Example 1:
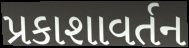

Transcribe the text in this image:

પ્રકાશાવર્તન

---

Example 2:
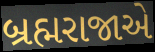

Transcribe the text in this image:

બ્રહ્મરાજાએ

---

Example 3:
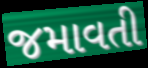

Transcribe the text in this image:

જમાવતી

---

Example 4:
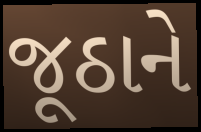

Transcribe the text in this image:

જૂઠાને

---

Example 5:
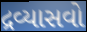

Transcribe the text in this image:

દ્રવ્યાસવો